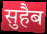
सुहैब